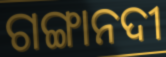
ଗଙ୍ଗାନଦୀ